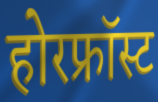
होरफ्रॉस्ट